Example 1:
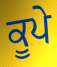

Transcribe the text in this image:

ਕੂਪੇ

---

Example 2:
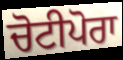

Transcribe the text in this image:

ਚੋਟੀਪੋਰਾ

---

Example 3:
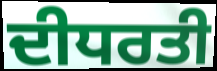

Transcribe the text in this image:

ਦੀਧਰਤੀ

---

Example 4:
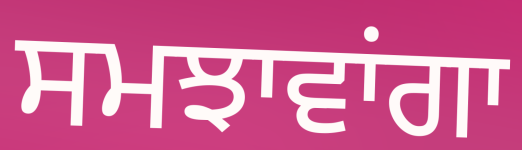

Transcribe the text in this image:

ਸਮਝਾਵਾਂਗਾ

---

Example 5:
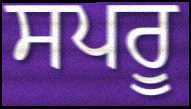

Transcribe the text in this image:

ਸਪਰੂ